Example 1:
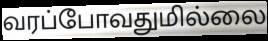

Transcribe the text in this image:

வரப்போவதுமில்லை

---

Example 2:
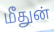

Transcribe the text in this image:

மீதுன்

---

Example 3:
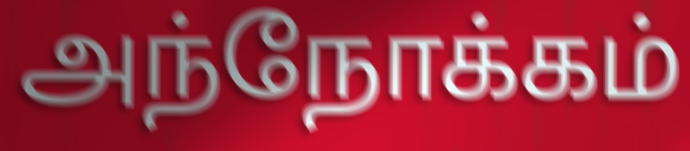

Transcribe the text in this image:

அந்நோக்கம்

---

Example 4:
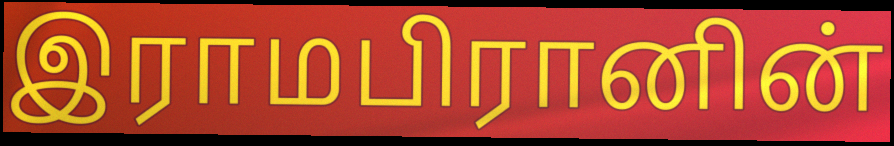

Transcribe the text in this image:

இராமபிரானின்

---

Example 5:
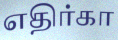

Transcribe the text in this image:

எதிர்கா